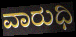
ವಾರುಧಿ